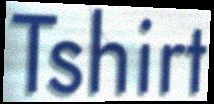
Tshirt